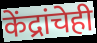
केंद्रांचेही